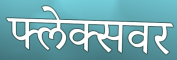
फ्लेक्सवर